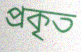
প্রকৃত